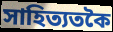
সাহিত্যতকৈ